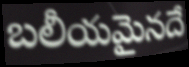
బలీయమైనదే